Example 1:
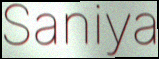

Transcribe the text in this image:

Saniya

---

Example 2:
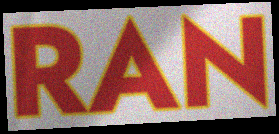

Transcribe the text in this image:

RAN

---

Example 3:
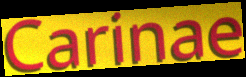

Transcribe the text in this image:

Carinae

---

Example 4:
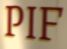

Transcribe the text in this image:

PIF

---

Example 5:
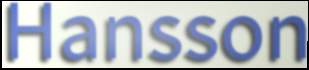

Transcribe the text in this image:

Hansson